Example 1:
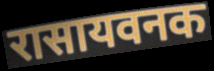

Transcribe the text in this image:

रासायवनक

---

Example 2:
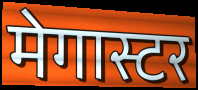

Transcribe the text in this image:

मेगास्टर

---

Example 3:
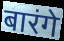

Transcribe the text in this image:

बारंगे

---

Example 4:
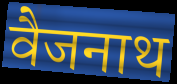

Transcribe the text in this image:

वैजनाथ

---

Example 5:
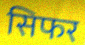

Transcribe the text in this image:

सिफर